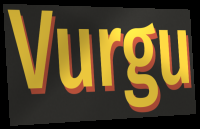
Vurgu